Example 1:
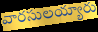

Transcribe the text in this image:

వారసులయ్యారు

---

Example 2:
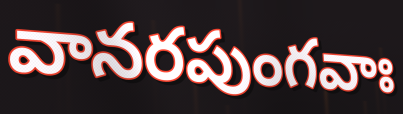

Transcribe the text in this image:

వానరపుంగవాః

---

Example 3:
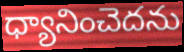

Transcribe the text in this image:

ధ్యానించెదను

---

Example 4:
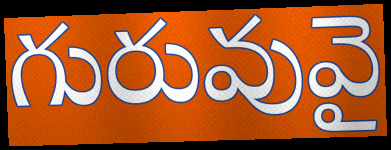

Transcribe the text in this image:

గురువువై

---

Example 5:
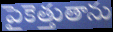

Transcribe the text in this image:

పైకెత్తుతాను